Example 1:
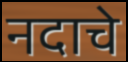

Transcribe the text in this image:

नदाचे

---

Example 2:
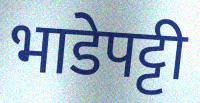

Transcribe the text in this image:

भाडेपट्टी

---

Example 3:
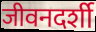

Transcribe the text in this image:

जीवनदर्शी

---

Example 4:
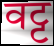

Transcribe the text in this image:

वट्ट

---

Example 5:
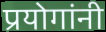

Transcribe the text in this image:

प्रयोगांनी